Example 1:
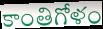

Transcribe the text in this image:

కాంతిగోళం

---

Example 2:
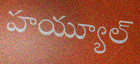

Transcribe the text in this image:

హయ్యూల్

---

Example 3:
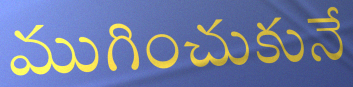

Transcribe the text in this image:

ముగించుకునే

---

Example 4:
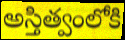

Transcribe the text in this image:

అస్తిత్వంలోకి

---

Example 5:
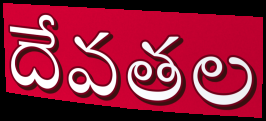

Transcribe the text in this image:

దేవతల